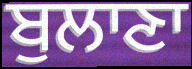
ਬੁਲਾਣਾ